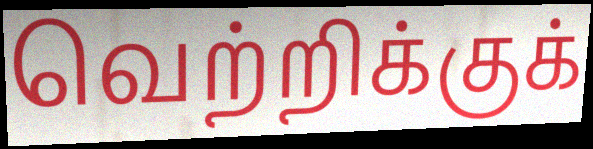
வெற்றிக்குக்